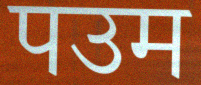
पउम